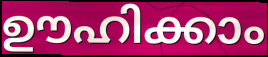
ഊഹിക്കാം